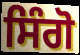
ਸਿੰਗੋ